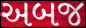
અબજ